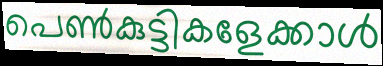
പെൺകുട്ടികളേക്കാൾ